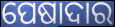
ପେଷାଦାର